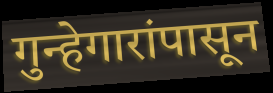
गुन्हेगारांपासून